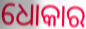
ଧୋକାର